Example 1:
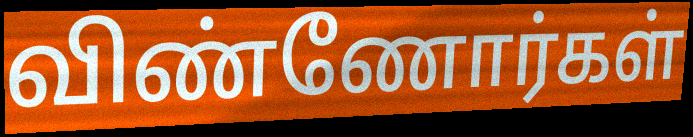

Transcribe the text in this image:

விண்ணோர்கள்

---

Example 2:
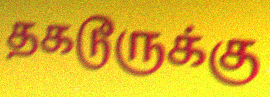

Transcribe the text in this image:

தகடூருக்கு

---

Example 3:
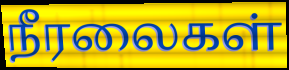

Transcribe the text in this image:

நீரலைகள்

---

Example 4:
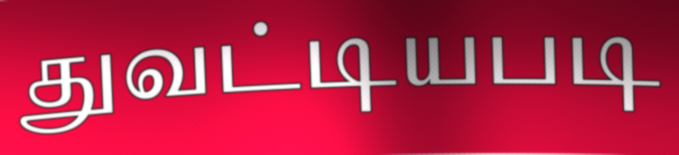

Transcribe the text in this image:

துவட்டியபடி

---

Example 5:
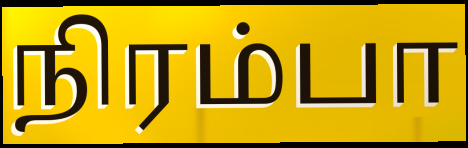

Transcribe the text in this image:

நிரம்பா